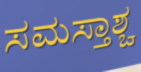
ಸಮಸ್ತಾಶ್ಚ